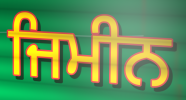
ਜਿਮੀਨ